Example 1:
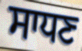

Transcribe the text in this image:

ਸਾਧਣ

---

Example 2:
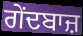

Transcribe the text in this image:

ਗੇਂਦਬਾਜ਼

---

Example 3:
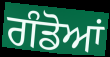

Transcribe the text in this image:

ਗੰਡੋਆਂ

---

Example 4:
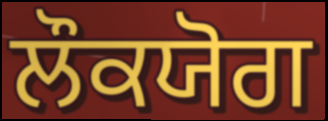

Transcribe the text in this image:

ਲੌਕਯੋਗ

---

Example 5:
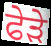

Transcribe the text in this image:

ਫੇੜੇ